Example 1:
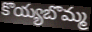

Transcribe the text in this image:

కొయ్యబొమ్మ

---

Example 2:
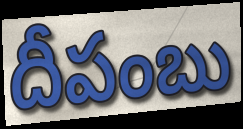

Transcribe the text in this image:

దీపంబు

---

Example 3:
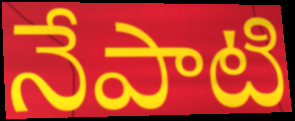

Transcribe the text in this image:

నేపాటి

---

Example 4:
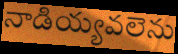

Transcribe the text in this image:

నాడియ్యవలెను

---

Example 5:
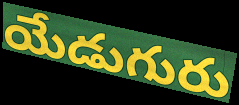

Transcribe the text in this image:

యేడుగురు